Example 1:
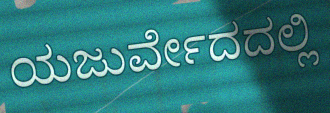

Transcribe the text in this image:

ಯಜುರ್ವೇದದಲ್ಲಿ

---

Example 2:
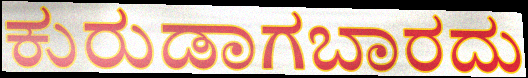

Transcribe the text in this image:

ಕುರುಡಾಗಬಾರದು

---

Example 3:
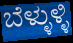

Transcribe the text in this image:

ಬೆಳ್ಳುಳ್ಳಿ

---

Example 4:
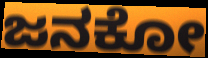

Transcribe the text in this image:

ಜನಕೋ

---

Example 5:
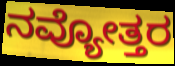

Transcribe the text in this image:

ನವ್ಯೋತ್ತರ